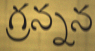
గ్రన్నన